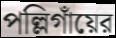
পল্লিগাঁয়ের